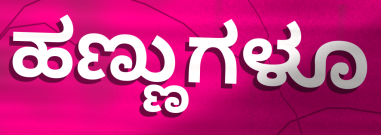
ಹಣ್ಣುಗಳೂ